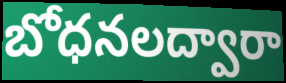
బోధనలద్వారా